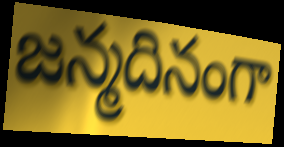
జన్మదినంగా